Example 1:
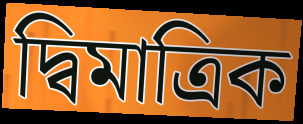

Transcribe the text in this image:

দ্বিমাত্রিক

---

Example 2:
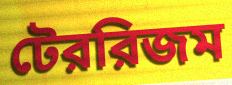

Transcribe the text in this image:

টেররিজম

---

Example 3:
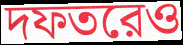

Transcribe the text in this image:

দফতরেও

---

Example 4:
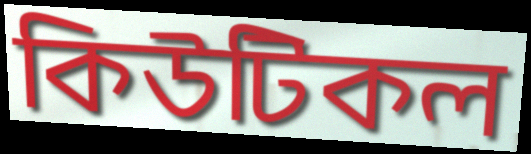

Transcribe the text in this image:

কিউটিকল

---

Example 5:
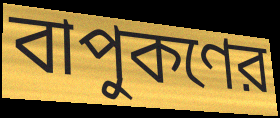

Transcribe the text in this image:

বাপুকণের